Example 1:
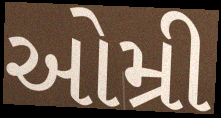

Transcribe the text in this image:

ઓમ્રી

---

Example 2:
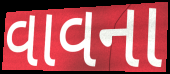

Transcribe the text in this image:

વાવના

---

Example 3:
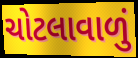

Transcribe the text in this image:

ચોટલાવાળું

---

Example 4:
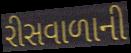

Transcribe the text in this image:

રીસવાળાની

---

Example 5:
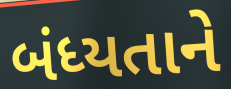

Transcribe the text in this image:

બંધ્યતાને